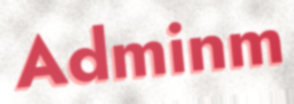
Adminm